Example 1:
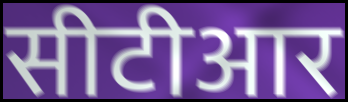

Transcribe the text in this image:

सीटीआर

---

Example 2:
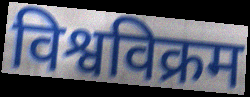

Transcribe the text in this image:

विश्वविक्रम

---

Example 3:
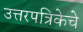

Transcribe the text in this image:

उत्तरपत्रिकेचे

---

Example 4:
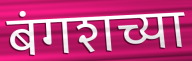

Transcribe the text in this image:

बंगशच्या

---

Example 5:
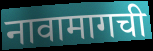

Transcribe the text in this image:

नावामागची